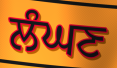
ਲੰਘਣ